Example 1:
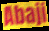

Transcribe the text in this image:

Abaji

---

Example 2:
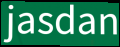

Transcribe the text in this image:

jasdan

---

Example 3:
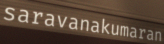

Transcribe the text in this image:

saravanakumaran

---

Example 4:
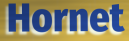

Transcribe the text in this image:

Hornet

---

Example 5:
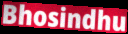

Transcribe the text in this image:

Bhosindhu